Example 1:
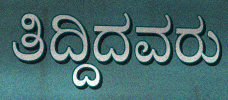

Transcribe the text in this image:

ತಿದ್ದಿದವರು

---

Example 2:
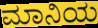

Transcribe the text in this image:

ಮಾನಿಯ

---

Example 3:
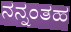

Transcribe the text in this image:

ನನ್ನಂತಹ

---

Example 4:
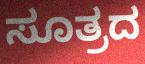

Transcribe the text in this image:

ಸೂತ್ರದ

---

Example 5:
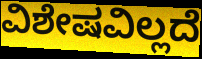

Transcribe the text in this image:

ವಿಶೇಷವಿಲ್ಲದೆ